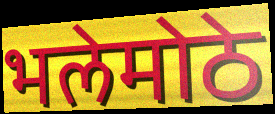
भलेमोठे